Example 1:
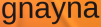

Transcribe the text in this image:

gnayna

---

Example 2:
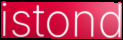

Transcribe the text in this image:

istond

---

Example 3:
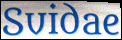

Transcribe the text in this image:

Suidae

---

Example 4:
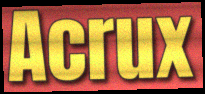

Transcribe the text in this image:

Acrux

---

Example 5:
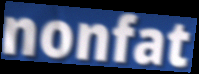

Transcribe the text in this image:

nonfat